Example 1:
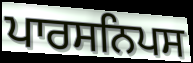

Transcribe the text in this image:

ਪਾਰਸਨਿਪਸ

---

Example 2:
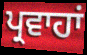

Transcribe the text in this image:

ਪ੍ਰਵਾਹਾਂ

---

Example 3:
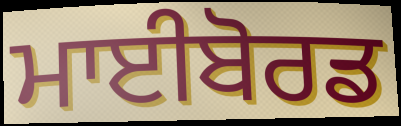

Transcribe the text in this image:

ਮਾਈਬੋਰਡ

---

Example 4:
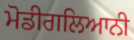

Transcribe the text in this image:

ਮੋਡੀਗਲਿਆਨੀ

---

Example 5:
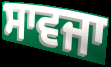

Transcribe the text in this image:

ਸਾਵਜਾ